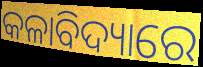
କଳାବିଦ୍ୟାରେ